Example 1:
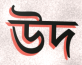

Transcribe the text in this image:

উদ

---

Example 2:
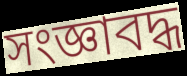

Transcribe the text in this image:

সংজ্ঞাবদ্ধ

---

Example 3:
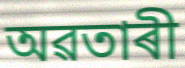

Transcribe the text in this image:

অৱতাৰী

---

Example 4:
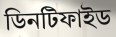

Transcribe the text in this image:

ডিনটিফাইড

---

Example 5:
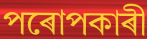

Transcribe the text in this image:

পৰোপকাৰী